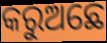
କରୁଅଛେ